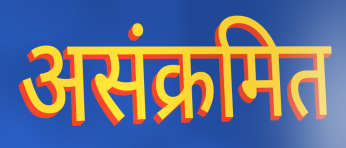
असंक्रमित